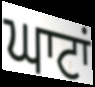
ਘਾਟਾਂ